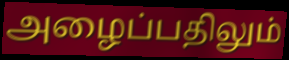
அழைப்பதிலும்